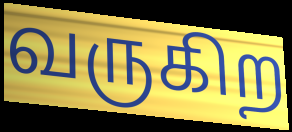
வருகிற